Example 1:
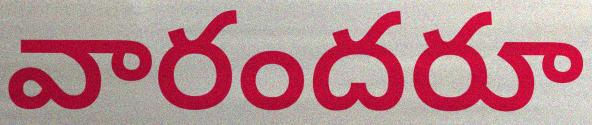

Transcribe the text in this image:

వారందరూ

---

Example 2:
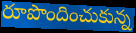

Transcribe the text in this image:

రూపొందించుకున్న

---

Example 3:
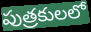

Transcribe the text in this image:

పుత్రకులలో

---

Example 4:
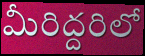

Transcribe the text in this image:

మీరిద్దరిలో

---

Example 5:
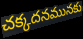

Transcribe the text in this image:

చక్కదనమునకు